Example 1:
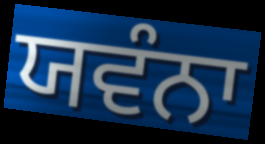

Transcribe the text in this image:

ਯਵੰਨਾ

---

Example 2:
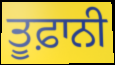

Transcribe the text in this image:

ਤੂਫ਼ਾਨੀ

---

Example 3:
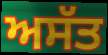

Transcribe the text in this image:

ਅਸੱਤ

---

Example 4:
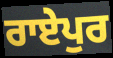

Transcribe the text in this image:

ਰਾਏਪੁਰ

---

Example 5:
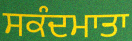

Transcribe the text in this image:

ਸਕੰਦਮਾਤਾ